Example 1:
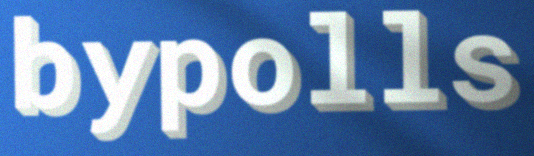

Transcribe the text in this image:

bypolls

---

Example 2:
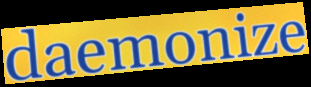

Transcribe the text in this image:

daemonize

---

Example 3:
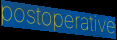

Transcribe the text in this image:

postoperative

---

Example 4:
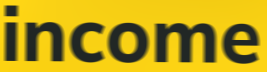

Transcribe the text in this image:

income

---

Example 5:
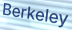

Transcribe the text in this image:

Berkeley